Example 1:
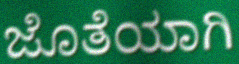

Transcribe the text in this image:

ಜೊತೆಯಾಗಿ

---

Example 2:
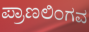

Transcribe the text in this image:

ಪ್ರಾಣಲಿಂಗವ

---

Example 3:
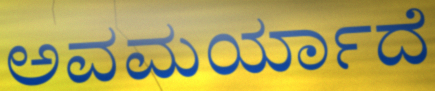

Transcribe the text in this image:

ಅವಮರ್ಯಾದೆ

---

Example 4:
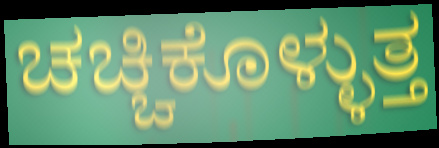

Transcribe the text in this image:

ಚಚ್ಚಿಕೊಳ್ಳುತ್ತ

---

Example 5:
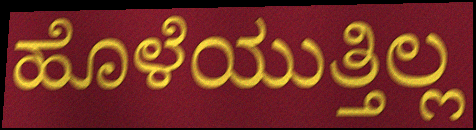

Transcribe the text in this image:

ಹೊಳೆಯುತ್ತಿಲ್ಲ